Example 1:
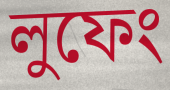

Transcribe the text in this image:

লুফেং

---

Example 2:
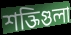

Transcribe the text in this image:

শক্তিগুলা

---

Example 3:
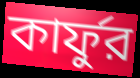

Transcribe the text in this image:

কার্ফুর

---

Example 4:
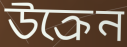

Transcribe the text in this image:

উক্রেন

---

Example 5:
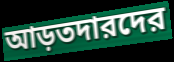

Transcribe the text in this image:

আড়তদারদের